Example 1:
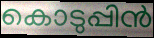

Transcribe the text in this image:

കൊടുപ്പിൻ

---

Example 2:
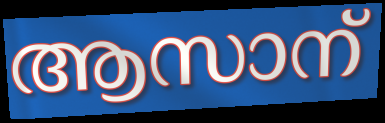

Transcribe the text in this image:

ആസാന്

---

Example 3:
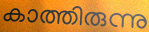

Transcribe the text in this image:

കാത്തിരുന്നു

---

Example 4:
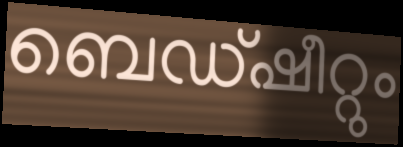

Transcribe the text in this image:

ബെഡ്ഷീറ്റും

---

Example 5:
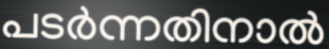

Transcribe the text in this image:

പടർന്നതിനാൽ